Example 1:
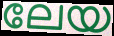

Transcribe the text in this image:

ലേയ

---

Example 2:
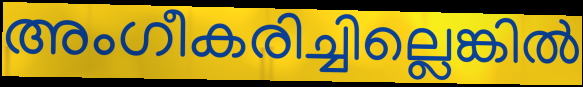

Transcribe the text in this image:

അംഗീകരിച്ചില്ലെങ്കിൽ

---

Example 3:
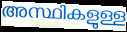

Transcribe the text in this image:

അസ്ഥികളുള്ള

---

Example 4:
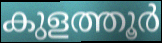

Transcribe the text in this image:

കുളത്തൂർ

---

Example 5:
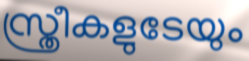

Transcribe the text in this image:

സ്ത്രീകളുടേയും